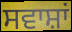
ਸਵਾਸ਼ਾਂ